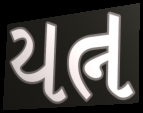
યત્ન